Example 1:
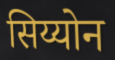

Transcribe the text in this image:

सिय्योन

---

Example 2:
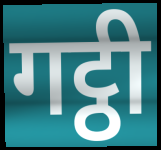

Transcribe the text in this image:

गट्ठी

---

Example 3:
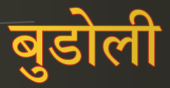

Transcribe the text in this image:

बुडोली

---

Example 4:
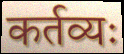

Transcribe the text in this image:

कर्तव्यः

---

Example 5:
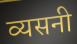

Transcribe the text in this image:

व्यसनी